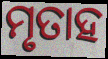
ମୃତାହ